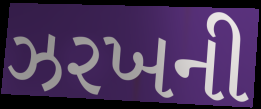
ઝરખની